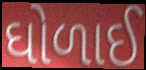
ઘોળાઈ